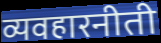
व्यवहारनीती